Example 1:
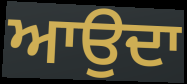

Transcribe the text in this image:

ਆਉਦਾ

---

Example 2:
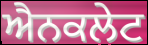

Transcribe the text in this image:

ਐਨਕਲੇਟ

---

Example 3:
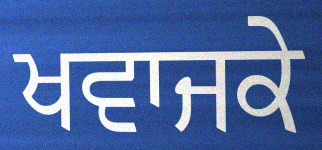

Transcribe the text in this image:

ਖਵਾਜਕੇ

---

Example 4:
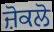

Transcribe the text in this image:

ਜ਼ੋਕਲੋ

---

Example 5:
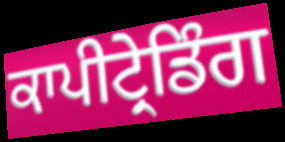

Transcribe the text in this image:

ਕਾਪੀਟ੍ਰੇਡਿੰਗ